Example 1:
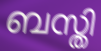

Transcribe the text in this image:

ബസ്തി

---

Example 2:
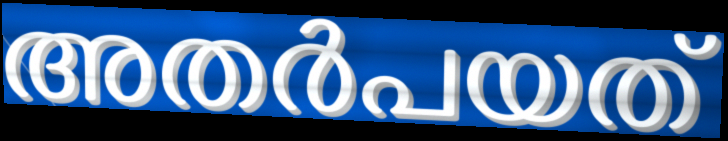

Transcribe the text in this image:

അതർപയത്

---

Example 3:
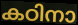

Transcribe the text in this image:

കഠിനാ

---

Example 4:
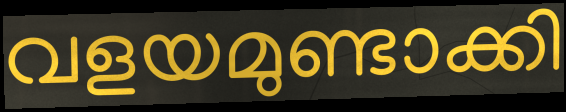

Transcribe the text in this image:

വളയമുണ്ടാക്കി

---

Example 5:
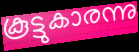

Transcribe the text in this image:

കൂട്ടുകാരന്നു